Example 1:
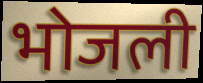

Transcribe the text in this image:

भोजली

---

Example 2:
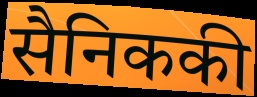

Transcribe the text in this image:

सैनिककी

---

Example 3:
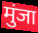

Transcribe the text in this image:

मुंजा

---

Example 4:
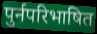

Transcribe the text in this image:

पुर्नपरिभाषित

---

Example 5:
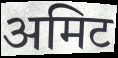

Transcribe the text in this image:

अमिट